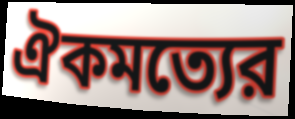
ঐকমত্যের